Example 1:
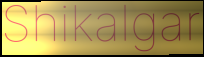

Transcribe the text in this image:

Shikalgar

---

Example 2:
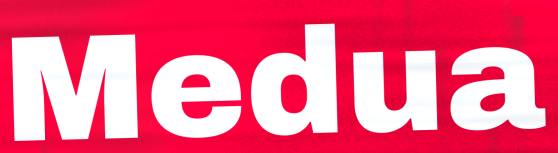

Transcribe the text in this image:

Medua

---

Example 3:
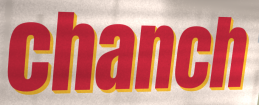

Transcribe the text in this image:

chanch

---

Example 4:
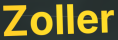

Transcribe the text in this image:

Zoller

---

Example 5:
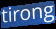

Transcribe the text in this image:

tirong